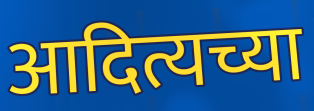
आदित्यच्या